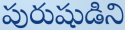
పురుషుడిని